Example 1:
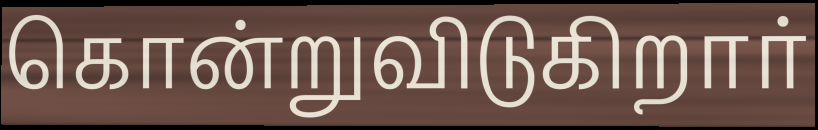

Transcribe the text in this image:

கொன்றுவிடுகிறார்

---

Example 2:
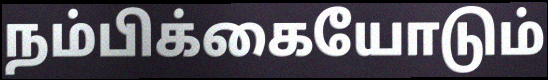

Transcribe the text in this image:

நம்பிக்கையோடும்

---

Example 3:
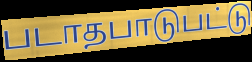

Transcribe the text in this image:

படாதபாடுபட்டு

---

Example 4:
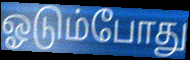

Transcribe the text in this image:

ஓடும்போது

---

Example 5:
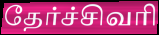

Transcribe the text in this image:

தேர்ச்சிவரி